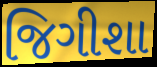
જિગીશા